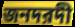
জনদরদী